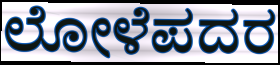
ಲೋಳೆಪದರ